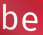
be